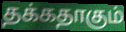
தக்கதாகும்